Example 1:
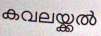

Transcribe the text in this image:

കവലയ്ക്കൽ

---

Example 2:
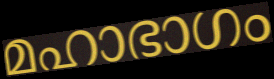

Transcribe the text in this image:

മഹാഭാഗം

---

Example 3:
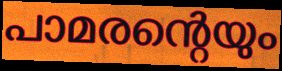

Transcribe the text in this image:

പാമരന്റെയും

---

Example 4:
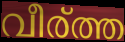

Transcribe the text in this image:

വീര്ത്ത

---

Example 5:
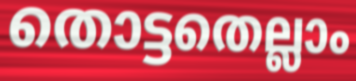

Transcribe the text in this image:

തൊട്ടതെല്ലാം